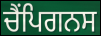
ਚੈਂਪਿਗਨਸ